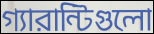
গ্যারান্টিগুলো